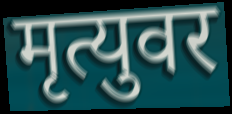
मृत्युवर